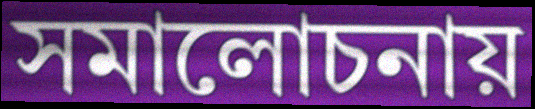
সমালোচনায়